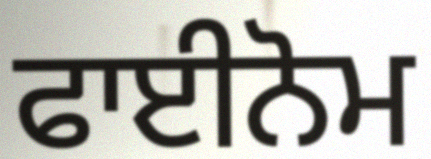
ਫਾਈਨੋਮ